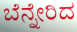
ಬೆನ್ನೇರಿದ